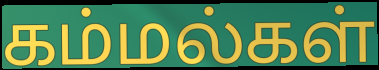
கம்மல்கள்